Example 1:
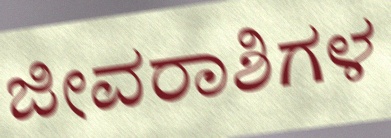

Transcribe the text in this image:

ಜೀವರಾಶಿಗಳ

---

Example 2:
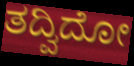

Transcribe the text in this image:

ತದ್ವಿದೋ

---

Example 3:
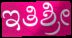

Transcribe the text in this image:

ಇತಿಶ್ರೀ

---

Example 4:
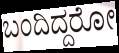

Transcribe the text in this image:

ಬಂದಿದ್ದರೋ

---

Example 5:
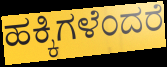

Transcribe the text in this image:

ಹಕ್ಕಿಗಳೆಂದರೆ